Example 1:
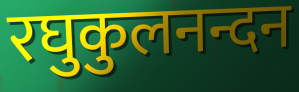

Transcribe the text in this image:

रघुकुलनन्दन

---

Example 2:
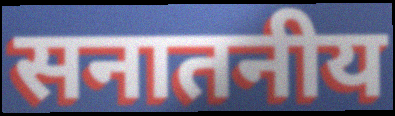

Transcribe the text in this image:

सनातनीय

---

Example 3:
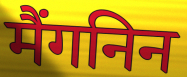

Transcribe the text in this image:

मैंगनिन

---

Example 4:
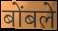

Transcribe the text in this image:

बोंबले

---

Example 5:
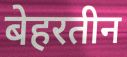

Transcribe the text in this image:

बेहरतीन